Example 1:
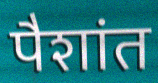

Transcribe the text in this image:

पैशांत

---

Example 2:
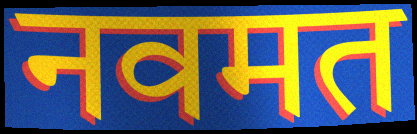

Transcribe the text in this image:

नवमत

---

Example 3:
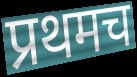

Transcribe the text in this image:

प्रथमच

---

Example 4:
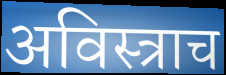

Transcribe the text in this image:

अविस्त्राच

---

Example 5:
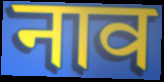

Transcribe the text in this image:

नाव